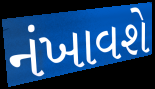
નંખાવશે